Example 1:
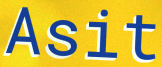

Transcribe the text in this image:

Asit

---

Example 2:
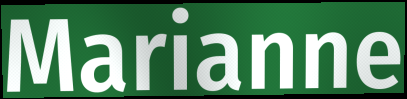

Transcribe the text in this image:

Marianne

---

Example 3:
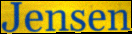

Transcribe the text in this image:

Jensen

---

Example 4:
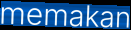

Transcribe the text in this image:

memakan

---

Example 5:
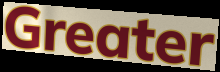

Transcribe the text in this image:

Greater